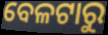
ବେଳଟାରୁ